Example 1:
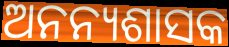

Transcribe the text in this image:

ଅନନ୍ୟଶାସକ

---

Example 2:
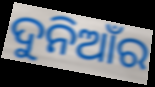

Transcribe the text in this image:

ଦୁନିଆଁର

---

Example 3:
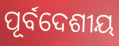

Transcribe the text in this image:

ପୂର୍ବଦେଶୀୟ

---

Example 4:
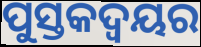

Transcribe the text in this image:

ପୁସ୍ତକଦ୍ୱୟର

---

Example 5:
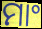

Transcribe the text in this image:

ମାଂ